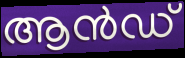
ആൻഡ്